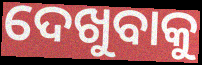
ଦେଖୁବାକୁ